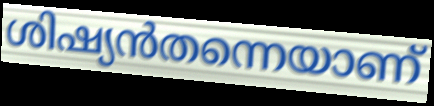
ശിഷ്യൻതന്നെയാണ്